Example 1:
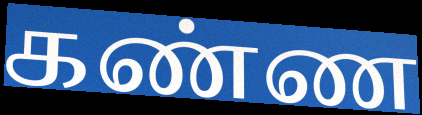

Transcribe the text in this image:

கண்ண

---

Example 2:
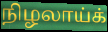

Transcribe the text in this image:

நிழலாய்க்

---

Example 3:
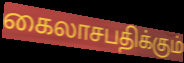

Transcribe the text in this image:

கைலாசபதிக்கும்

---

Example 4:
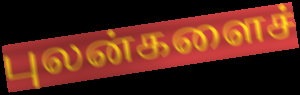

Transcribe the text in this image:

புலன்களைச்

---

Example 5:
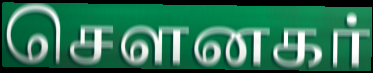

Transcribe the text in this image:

சௌனகர்